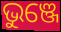
ଭୁଞ୍ଜେ